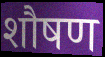
शौषण